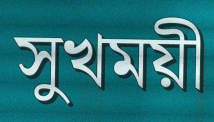
সুখময়ী